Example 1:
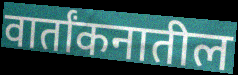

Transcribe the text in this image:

वार्तांकनातील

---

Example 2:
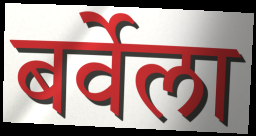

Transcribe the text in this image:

बर्वेला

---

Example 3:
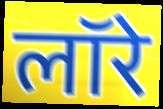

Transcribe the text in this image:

लॉरे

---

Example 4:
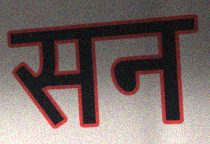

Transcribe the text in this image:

सन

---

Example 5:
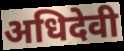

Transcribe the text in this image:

अधिदेवी